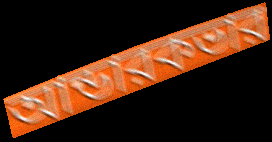
আন্ডারকভার